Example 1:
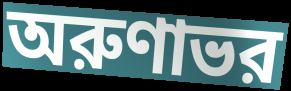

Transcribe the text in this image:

অরুণাভর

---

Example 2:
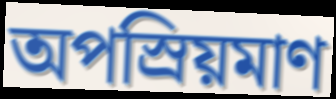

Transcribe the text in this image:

অপস্রিয়মাণ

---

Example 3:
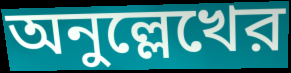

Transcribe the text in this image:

অনুল্লেখের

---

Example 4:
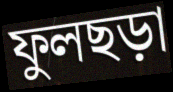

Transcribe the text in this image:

ফুলছড়া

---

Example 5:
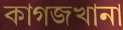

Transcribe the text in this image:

কাগজখানা